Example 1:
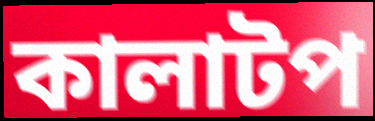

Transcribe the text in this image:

কালাটপ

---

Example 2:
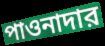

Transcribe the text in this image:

পাওনাদার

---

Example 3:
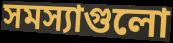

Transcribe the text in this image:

সমস্যাগুলো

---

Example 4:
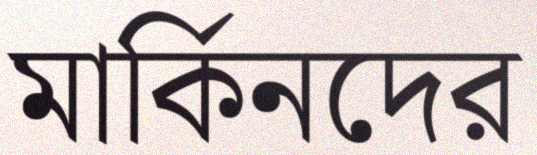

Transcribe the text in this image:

মার্কিনদের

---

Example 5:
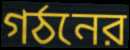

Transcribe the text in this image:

গঠনের